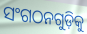
ସଂଗଠନଗୁଡ଼ିକୁ